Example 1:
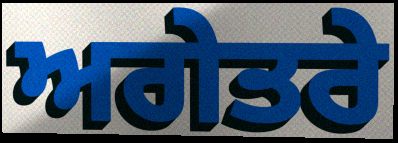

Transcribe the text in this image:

ਅਗੇਤਰੇ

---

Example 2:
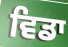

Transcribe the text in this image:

ਵਿਡਾ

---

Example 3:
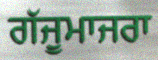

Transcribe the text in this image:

ਗੱਜੂਮਾਜਰਾ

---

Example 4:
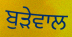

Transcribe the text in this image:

ਬੁੜੇਵਾਲ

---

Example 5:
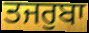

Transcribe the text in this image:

ਤਜਰੁਬਾ